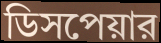
ডিসপেয়ার